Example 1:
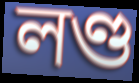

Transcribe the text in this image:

লণ্ড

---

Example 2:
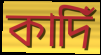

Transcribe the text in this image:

কাদিঁ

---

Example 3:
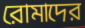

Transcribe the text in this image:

রোমাদের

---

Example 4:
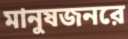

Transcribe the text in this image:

মানুষজনরে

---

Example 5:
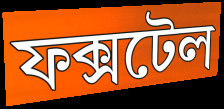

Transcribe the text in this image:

ফক্সটেল